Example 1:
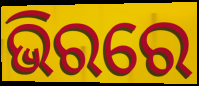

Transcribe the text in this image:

ଭିରରେ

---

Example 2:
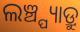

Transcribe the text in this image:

ଲଞ୍ଚ୍ପ୍ୟାଡ୍ରୁ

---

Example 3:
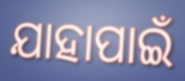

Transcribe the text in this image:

ଯାହାପାଇଁ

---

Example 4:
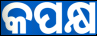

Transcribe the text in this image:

କପକ୍ଷ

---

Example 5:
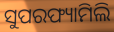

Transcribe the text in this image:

ସୁପରଫ୍ୟାମିଲି